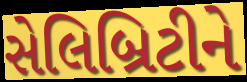
સેલિબ્રિટીને